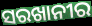
ସରଖାନୀର